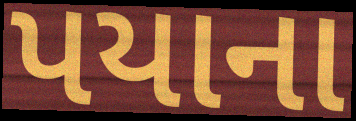
પયાના